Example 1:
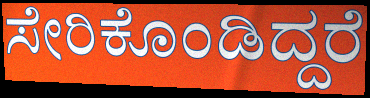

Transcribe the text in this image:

ಸೇರಿಕೊಂಡಿದ್ದರೆ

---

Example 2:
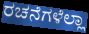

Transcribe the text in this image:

ರಚನೆಗಳೆಲ್ಲಾ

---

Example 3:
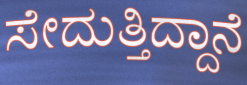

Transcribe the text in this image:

ಸೇದುತ್ತಿದ್ದಾನೆ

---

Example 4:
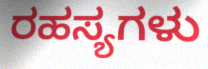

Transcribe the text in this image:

ರಹಸ್ಯಗಳು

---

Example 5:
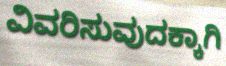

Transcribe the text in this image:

ವಿವರಿಸುವುದಕ್ಕಾಗಿ